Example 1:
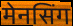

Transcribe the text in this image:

मेनसिंग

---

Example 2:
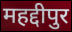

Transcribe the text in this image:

महद्दीपुर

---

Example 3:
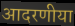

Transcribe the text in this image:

आदरणीया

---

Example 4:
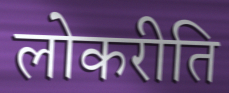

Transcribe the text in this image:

लोकरीति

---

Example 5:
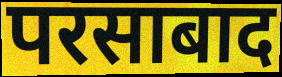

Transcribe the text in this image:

परसाबाद